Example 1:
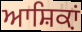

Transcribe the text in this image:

ਆਸ਼ਿਕ਼ਾਂ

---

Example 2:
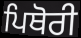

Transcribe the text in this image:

ਪਿਥੋਰੀ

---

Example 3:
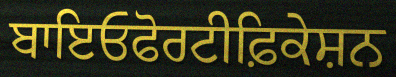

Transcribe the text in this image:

ਬਾਇਓਫੋਰਟੀਫ਼ਿਕੇਸ਼ਨ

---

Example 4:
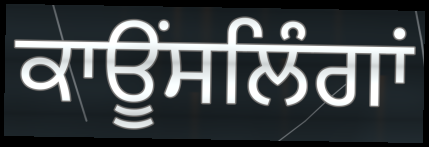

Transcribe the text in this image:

ਕਾਊਂਸਲਿੰਗਾਂ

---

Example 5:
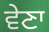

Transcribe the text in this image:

ਵੇਣਾ